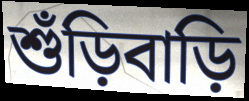
শুঁড়িবাড়ি